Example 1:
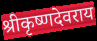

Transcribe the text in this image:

श्रीकृष्णदेवराय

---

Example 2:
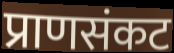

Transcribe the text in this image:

प्राणसंकट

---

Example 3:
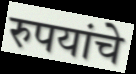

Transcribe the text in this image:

रुपयांचे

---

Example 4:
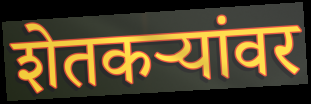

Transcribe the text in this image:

शेतकर्‍यांवर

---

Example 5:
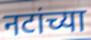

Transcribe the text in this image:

नटांच्या